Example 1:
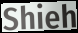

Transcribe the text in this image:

Shieh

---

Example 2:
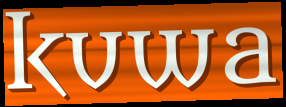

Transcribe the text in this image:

kuwa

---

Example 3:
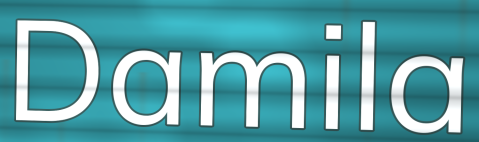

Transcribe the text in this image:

Damila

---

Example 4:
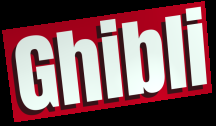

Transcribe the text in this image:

Ghibli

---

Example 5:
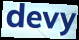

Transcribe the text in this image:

devy